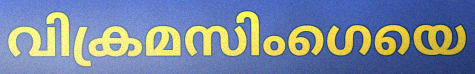
വിക്രമസിംഗെയെ